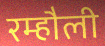
रम्हौली